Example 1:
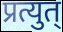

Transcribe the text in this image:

प्रत्युत्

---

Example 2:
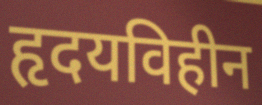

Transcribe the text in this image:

हृदयविहीन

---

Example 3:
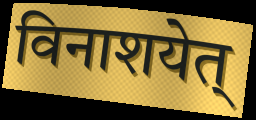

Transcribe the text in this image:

विनाशयेत्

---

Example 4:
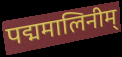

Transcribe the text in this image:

पद्ममालिनीम्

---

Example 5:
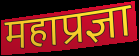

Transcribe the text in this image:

महाप्रज्ञा